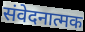
संवेदनात्मक